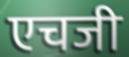
एचजी